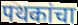
पथकांचा